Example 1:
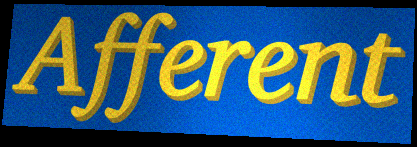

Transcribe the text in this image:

Afferent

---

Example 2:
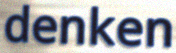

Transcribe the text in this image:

denken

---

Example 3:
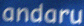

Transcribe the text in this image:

andaru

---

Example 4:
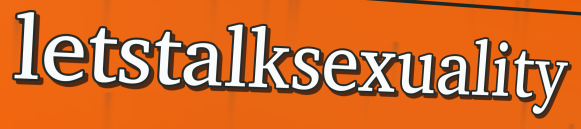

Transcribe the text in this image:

letstalksexuality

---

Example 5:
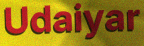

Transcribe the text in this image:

Udaiyar